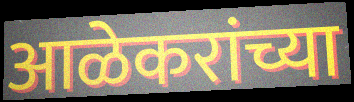
आळेकरांच्या